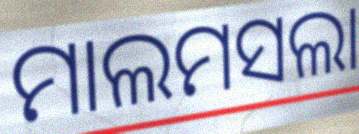
ମାଲମସଲା